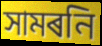
সামৰনি